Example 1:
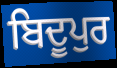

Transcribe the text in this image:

ਬਿਦੂਪੁਰ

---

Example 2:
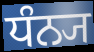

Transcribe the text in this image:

ਧੰਨ੍ਯ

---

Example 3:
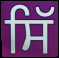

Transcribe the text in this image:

ਸਿੱ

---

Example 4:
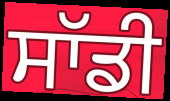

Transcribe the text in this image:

ਸਾੱਡੀ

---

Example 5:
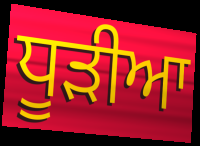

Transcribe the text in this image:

ਧੂੜੀਆ